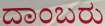
ದಾಂಬರು